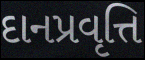
દાનપ્રવૃત્તિ